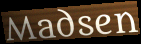
Madsen